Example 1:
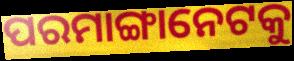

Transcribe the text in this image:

ପରମାଙ୍ଗାନେଟକୁ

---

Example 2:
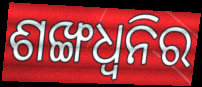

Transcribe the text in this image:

ଶଙ୍ଖଧ୍ବନିର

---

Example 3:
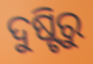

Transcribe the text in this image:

ଦୁଷ୍ଟିରୁ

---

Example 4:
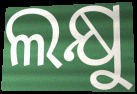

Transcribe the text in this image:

ଲକ୍ଷୁ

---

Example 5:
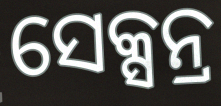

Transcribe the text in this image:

ସେକ୍ସନ୍ର